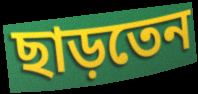
ছাড়তেন